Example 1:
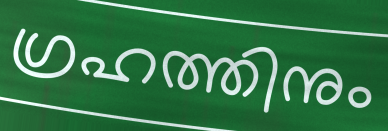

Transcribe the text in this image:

ഗ്രഹത്തിനും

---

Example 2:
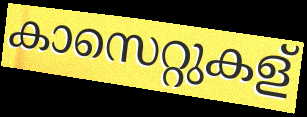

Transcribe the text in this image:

കാസെറ്റുകള്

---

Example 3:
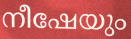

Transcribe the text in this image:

നീഷേയും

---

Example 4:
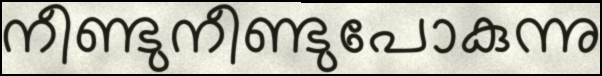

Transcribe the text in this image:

നീണ്ടുനീണ്ടുപോകുന്നു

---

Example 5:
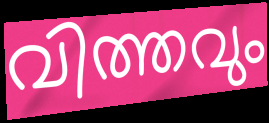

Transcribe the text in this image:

വിത്തവും